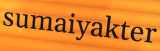
sumaiyakter